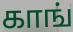
காங்